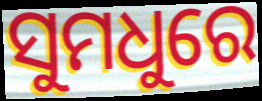
ସୁମଧୁରେ